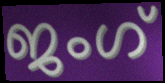
ജംഗ്